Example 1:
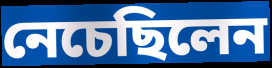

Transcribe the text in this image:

নেচেছিলেন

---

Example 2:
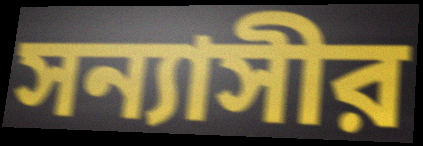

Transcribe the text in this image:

সন্যাসীর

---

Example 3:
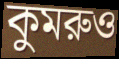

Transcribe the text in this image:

কুমরুও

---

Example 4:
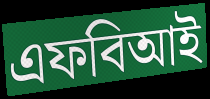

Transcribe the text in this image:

এফবিআই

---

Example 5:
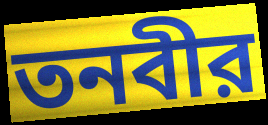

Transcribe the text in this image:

তনবীর